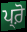
ਪ੍ਰ਼ੋ